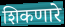
शिकणारे